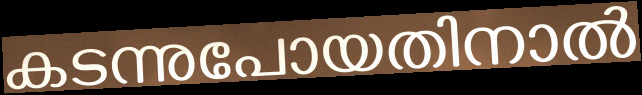
കടന്നുപോയതിനാൽ